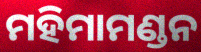
ମହିମାମଣ୍ଡନ